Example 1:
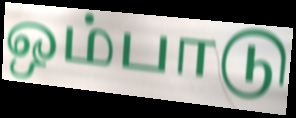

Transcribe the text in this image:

ஒம்பாடு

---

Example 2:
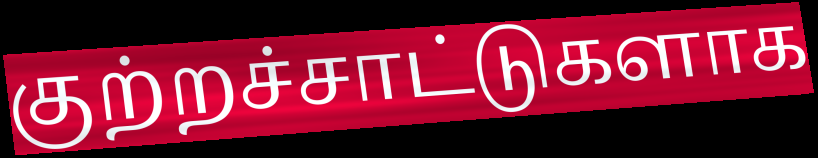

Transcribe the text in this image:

குற்றச்சாட்டுகளாக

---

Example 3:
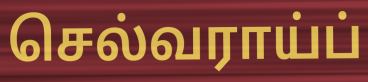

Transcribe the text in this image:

செல்வராய்ப்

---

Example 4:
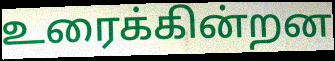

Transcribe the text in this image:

உரைக்கின்றன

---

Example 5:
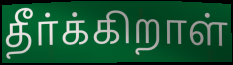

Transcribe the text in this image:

தீர்க்கிறாள்